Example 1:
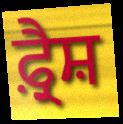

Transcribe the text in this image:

ਫ਼੍ਰੈਸ਼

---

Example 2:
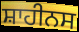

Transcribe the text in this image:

ਸ਼ਾਹੀਨਸ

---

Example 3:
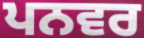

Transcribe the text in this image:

ਪਨਵਰ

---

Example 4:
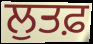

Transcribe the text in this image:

ਲੁਤਫ਼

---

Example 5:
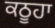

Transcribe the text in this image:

ਕਠੂਹਾ